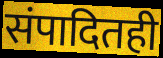
संपादितही